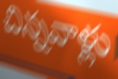
చిన్నవాళ్లు